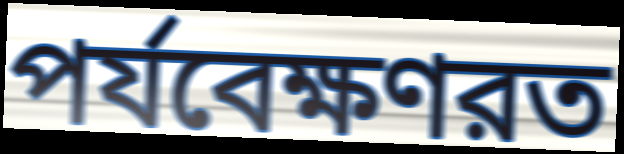
পর্যবেক্ষণরত